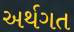
અર્થગત